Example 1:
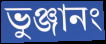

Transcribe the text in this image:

ভুঞ্জানং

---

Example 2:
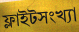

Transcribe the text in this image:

ফ্লাইটসংখ্যা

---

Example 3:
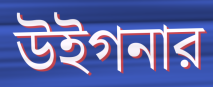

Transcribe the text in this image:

উইগনার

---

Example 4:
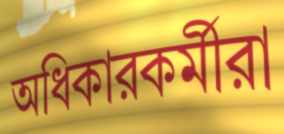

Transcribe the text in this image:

অধিকারকর্মীরা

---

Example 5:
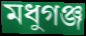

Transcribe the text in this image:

মধুগঞ্জ